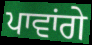
ਪਾਵਾਂਗੇ